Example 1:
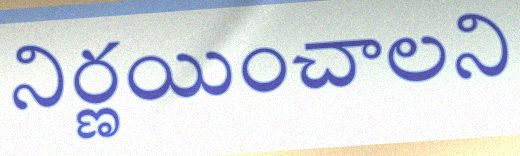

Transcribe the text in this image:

నిర్ణయించాలని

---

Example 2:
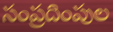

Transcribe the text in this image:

సంప్రదింపుల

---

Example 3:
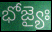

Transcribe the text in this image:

భోజ్యైః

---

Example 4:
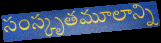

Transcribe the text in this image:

సంస్కృతమూలాన్ని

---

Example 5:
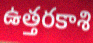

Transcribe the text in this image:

ఉత్తరకాశి